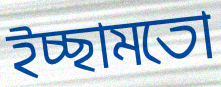
ইচ্ছামতো